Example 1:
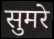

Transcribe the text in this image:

सुमरे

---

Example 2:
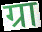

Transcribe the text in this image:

ग्रा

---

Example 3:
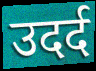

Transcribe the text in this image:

उदर्द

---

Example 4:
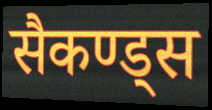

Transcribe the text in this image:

सैकण्ड्स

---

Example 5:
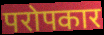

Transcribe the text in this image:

परोपकार